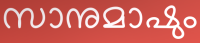
സാനുമാഷും